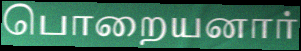
பொறையனார்